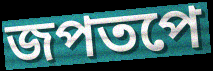
জপতপে